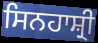
ਸਿਨਹਾਸ਼੍ਰੀ